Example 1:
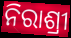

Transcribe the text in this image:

ନିରାଶ୍ରୀ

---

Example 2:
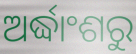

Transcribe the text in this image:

ଅର୍ଦ୍ଧାଂଶରୁ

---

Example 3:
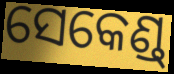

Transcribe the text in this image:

ସେକେଣ୍ଡ୍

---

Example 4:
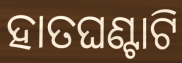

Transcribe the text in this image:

ହାତଘଣ୍ଟାଟି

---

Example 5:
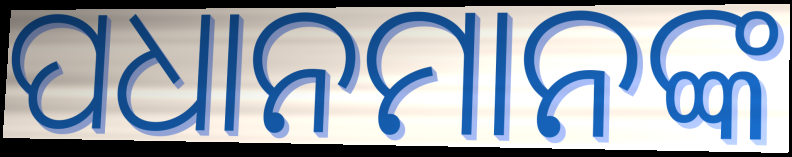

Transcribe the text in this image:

ପଧାନମାନଙ୍କ